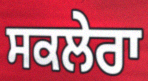
ਸਕਲੇਰਾ